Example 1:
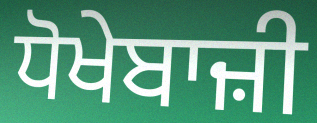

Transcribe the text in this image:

ਧੋਖੇਬਾਜ਼ੀ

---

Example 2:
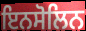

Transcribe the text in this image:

ਇਨਸੋਲਿਨ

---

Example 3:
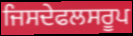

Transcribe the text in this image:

ਜਿਸਦੇਫਲਸਰੂਪ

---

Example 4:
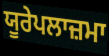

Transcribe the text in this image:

ਯੂਰੇਪਲਾਜ਼ਮਾ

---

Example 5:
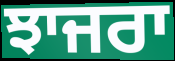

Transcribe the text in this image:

ਝਾਜਰਾ